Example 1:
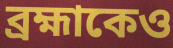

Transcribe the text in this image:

ব্রহ্মাকেও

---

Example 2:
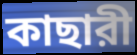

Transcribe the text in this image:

কাছারী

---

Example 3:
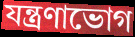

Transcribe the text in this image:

যন্ত্রণাভোগ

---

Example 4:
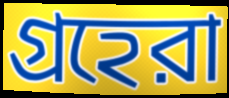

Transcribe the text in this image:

গ্রহেরা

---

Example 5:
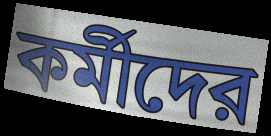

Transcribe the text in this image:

কর্মীদের